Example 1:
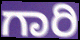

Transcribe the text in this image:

ಗಾರಿ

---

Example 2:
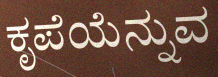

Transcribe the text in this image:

ಕೃಪೆಯೆನ್ನುವ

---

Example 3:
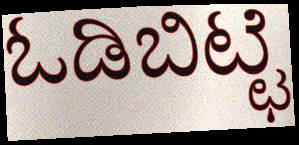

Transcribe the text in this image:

ಓಡಿಬಿಟ್ಟೆ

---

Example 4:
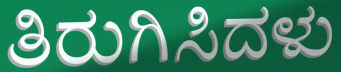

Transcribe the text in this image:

ತಿರುಗಿಸಿದಳು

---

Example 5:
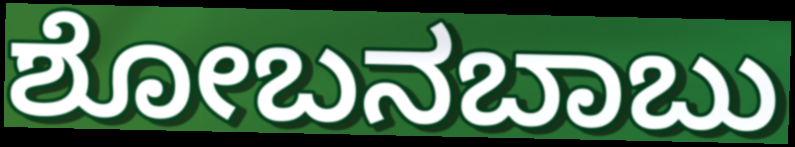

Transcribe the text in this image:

ಶೋಬನಬಾಬು